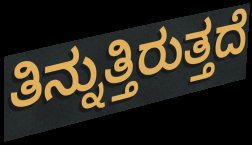
ತಿನ್ನುತ್ತಿರುತ್ತದೆ